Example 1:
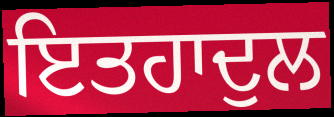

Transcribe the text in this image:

ਇਤਹਾਦੁਲ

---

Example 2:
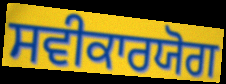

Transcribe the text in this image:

ਸਵੀਕਾਰਯੋਗ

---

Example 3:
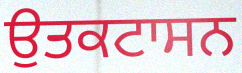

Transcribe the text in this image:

ਉਤਕਟਾਸਨ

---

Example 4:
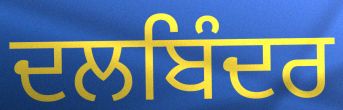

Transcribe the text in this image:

ਦਲਬਿੰਦਰ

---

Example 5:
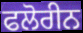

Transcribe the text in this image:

ਫਲੋਰੀਨ